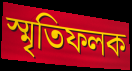
স্মৃতিফলক